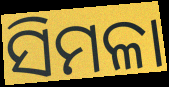
ସିମଳା